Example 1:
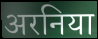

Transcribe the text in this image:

अरनिया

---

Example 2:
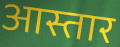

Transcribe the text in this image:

आस्तार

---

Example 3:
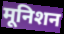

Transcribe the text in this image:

मूनिशन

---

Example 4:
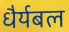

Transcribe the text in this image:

धैर्यबल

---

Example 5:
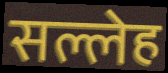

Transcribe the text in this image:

सल्लेह